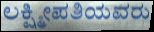
ಲಕ್ಷ್ಮೀಪತಿಯವರು